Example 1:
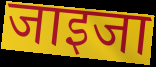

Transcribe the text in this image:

जाइजा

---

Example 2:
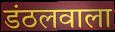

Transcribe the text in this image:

डंठलवाला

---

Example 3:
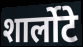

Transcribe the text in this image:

शार्लोटे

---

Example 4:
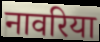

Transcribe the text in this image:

नावरिया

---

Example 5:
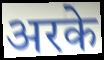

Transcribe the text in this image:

अरके